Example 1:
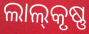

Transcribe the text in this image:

ଲାଲ୍‌କୃଷ୍ଣ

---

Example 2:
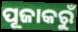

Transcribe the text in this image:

ପୂଜାକରୁଁ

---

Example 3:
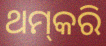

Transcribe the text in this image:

ଥମ୍‌କରି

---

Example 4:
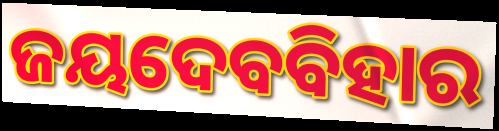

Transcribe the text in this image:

ଜୟଦେବବିହାର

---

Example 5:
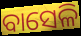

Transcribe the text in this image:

ବାସେଳି